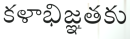
కళాభిజ్ఞతకు